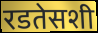
रडतेसशी